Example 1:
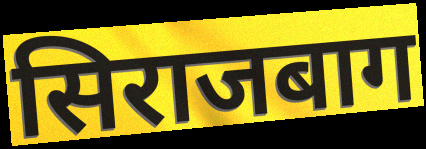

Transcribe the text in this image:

सिराजबाग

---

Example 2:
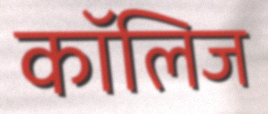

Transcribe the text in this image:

कॉलिज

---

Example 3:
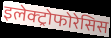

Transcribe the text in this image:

इलेक्ट्रोफोरेसिस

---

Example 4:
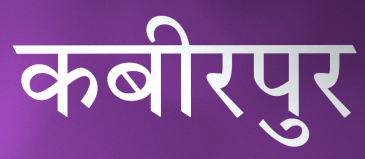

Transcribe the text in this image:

कबीरपुर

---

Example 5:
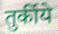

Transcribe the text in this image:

तुर्कीये